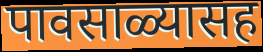
पावसाळ्यासह